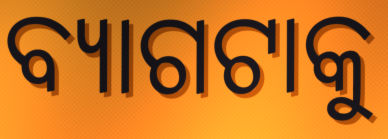
ବ୍ୟାଗଟାକୁ